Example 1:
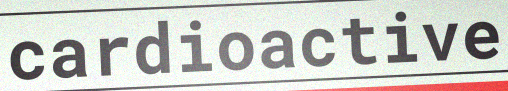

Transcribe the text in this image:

cardioactive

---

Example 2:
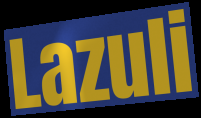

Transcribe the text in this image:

Lazuli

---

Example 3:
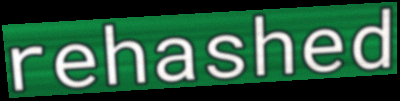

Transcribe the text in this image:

rehashed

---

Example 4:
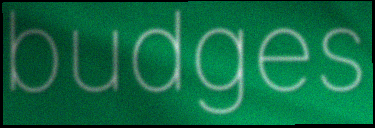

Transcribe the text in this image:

budges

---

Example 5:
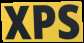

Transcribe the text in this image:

XPS